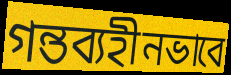
গন্তব্যহীনভাবে